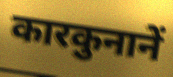
कारकुनानें